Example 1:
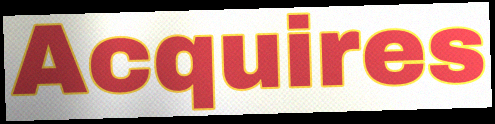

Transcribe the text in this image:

Acquires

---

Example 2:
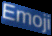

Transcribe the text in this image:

Emoji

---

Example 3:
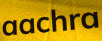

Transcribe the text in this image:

aachra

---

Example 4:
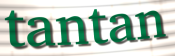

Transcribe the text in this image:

tantan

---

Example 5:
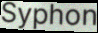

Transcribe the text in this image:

Syphon